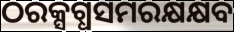
ଠରକ୍ସଗ୍ଧସମରକ୍ଷକ୍ଷବ